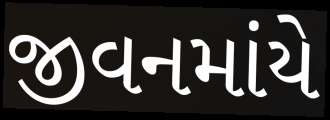
જીવનમાંયે